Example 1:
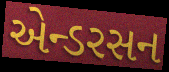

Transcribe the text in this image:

એન્ડરસન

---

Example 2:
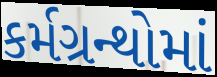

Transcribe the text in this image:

કર્મગ્રન્થોમાં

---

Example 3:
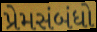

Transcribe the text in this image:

પ્રેમસંબંધો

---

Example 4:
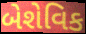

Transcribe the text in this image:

બેશેવિક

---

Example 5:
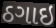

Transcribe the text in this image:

ઠગાઇ